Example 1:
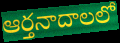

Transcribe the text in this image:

ఆర్తనాదాలలో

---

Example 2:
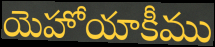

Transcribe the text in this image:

యెహోయాకీము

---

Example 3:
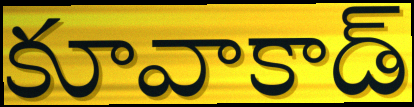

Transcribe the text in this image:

కూవాకాడ్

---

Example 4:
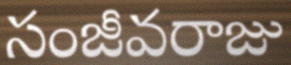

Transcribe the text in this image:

సంజీవరాజు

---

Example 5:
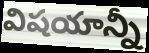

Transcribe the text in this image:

విషయాన్నీ